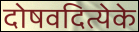
दोषवदित्येके